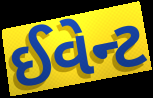
ઈવેન્ટ